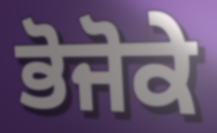
ਭੋਜੋਕੇ